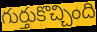
గుర్తుకొచ్చింది